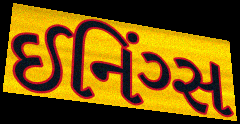
ઈનિંગ્સ